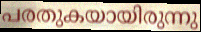
പരതുകയായിരുന്നു